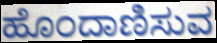
ಹೊಂದಾಣಿಸುವ